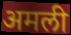
अमली